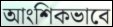
আংশিকভাবে